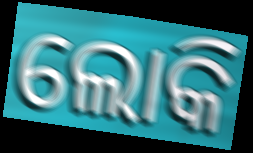
ଲୋକି